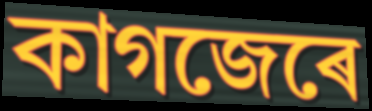
কাগজেৰে